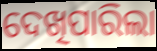
ଦେଖିପାରିଲା